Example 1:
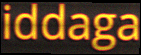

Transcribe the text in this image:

iddaga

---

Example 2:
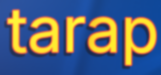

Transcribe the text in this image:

tarap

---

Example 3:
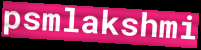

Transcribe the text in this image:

psmlakshmi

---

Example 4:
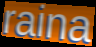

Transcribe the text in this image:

raina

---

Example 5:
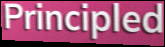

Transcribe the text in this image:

Principled